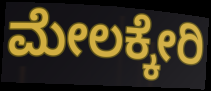
ಮೇಲಕ್ಕೇರಿ